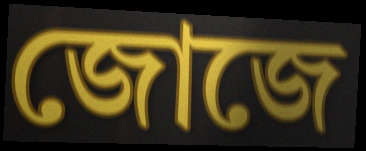
জোজে